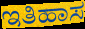
ಇತಿಹಾಸ